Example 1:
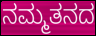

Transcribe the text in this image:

ನಮ್ಮತನದ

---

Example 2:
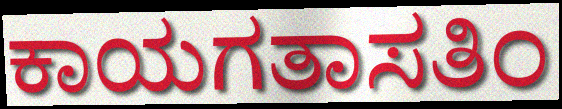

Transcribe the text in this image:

ಕಾಯಗತಾಸತಿಂ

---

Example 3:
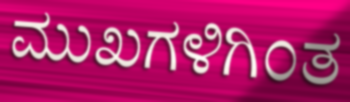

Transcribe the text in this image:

ಮುಖಗಳಿಗಿಂತ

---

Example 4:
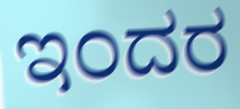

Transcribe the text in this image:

ಇಂದರ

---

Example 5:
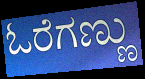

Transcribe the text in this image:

ಓರೆಗಣ್ಣು